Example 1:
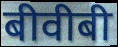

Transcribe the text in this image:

बीवीबी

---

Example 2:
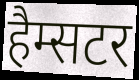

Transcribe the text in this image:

हैम्सटर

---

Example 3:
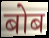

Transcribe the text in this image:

बोब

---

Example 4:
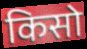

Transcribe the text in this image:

किसो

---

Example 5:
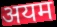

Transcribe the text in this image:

अयम